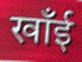
खाँई